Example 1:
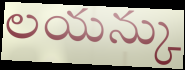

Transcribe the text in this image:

లయన్కు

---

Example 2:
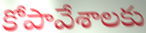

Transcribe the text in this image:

కోపావేశాలకు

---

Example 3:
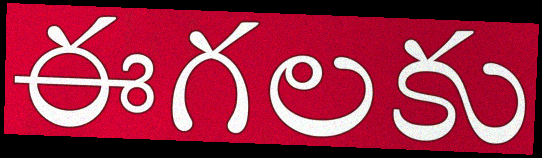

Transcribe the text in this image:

ఈగలకు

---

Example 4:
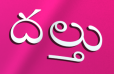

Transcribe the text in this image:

దల్తు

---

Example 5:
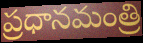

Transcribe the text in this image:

ప్రధానమంత్రి